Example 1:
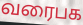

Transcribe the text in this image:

வரைபக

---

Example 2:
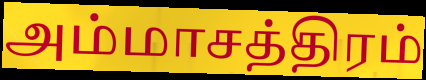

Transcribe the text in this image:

அம்மாசத்திரம்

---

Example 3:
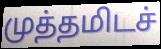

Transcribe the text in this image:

முத்தமிடச்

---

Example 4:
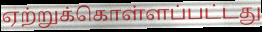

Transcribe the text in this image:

ஏற்றுக்கொள்ளப்பட்டது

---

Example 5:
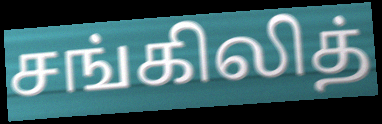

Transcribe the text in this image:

சங்கிலித்